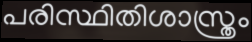
പരിസ്ഥിതിശാസ്ത്രം